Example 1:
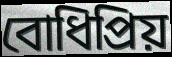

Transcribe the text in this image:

বোধিপ্রিয়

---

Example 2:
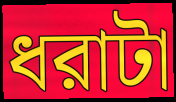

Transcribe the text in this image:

ধরাটা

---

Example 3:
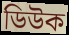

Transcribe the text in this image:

ডিউক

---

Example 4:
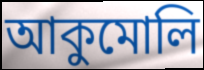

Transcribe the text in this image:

আকুমোলি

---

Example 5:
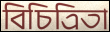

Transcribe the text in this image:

বিচিত্রিতা